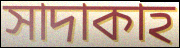
সাদাকাহ